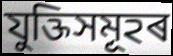
যুক্তিসমূহৰ